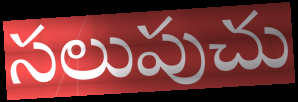
సలుపుచు